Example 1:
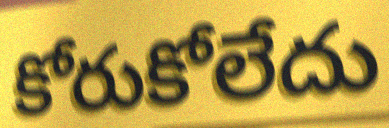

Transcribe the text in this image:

కోరుకోలేదు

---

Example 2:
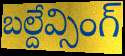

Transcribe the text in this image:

బల్దేవ్సింగ్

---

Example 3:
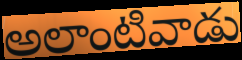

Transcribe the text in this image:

అలాంటివాడు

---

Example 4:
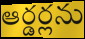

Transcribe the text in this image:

ఆర్డర్లను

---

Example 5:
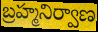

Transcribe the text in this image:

బ్రహ్మనిర్వాణ